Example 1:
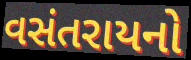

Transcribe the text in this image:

વસંતરાયનો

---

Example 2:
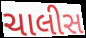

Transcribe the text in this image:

ચાલીસ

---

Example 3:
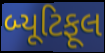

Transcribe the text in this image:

બ્યૂટિફૂલ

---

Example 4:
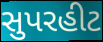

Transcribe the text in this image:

સુપરહીટ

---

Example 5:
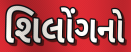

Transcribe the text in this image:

શિલોંગનો